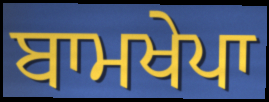
ਬਾਮਖੇਪਾ